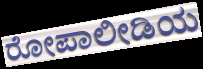
ರೋಪಾಲೀಡಿಯ